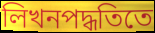
লিখনপদ্ধতিতে